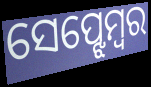
ସେପ୍ଝେମ୍ବର